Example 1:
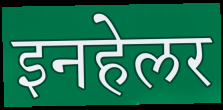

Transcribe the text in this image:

इनहेलर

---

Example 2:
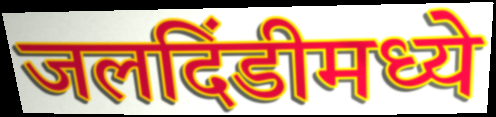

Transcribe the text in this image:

जलदिंडीमध्ये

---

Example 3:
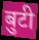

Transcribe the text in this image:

बुटी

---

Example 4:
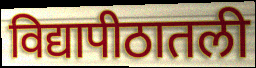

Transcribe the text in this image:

विद्यापीठातली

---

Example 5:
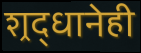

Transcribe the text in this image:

श्रद्धानेही